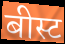
बीस्ट